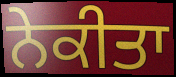
ਨੇਕੀਤਾ